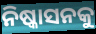
ନିଷ୍କାସନକୁ